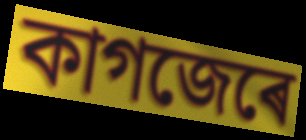
কাগজেৰে